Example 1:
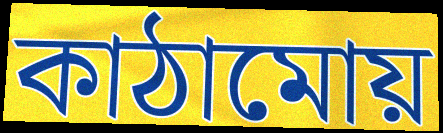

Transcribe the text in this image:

কাঠামোয়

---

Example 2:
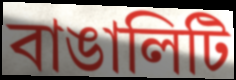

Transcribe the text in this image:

বাঙালিটি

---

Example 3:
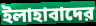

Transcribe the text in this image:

ইলাহাবাদের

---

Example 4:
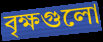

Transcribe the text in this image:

বৃক্ষগুলো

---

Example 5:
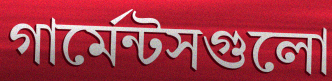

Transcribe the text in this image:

গার্মেন্টসগুলো